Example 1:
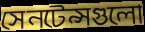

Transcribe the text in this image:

সেনটেন্সগুলো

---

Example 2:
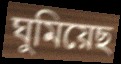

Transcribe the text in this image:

ঘুমিয়েছ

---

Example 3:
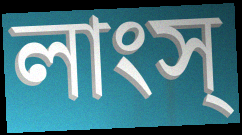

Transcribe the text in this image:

লাংস্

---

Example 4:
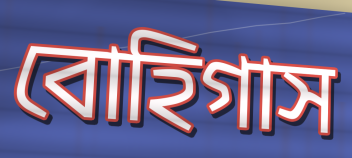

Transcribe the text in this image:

বোহিগাস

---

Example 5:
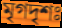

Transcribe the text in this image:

মৃগদৃশঃ